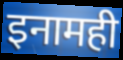
इनामही